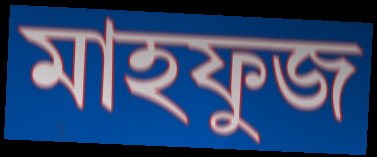
মাহফুজ